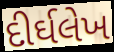
દીર્ઘલેખ